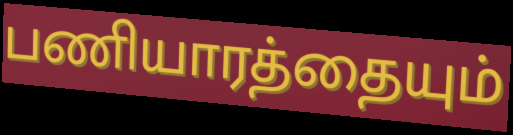
பணியாரத்தையும்